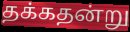
தக்கதன்று